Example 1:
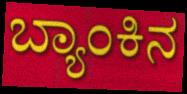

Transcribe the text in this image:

ಬ್ಯಾಂಕಿನ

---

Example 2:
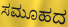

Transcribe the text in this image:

ಸಮೂಹದ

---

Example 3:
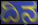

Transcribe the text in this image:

ದಿನ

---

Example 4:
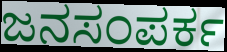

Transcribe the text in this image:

ಜನಸಂಪರ್ಕ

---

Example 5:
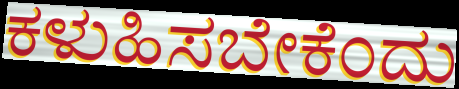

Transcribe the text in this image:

ಕಳುಹಿಸಬೇಕೆಂದು